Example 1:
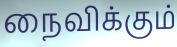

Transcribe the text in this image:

நைவிக்கும்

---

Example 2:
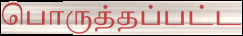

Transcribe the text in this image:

பொருத்தப்பட்ட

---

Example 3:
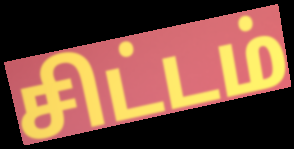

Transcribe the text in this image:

சிட்டம்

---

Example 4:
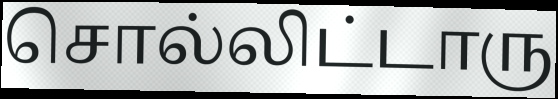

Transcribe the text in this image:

சொல்லிட்டாரு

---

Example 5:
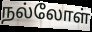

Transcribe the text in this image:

நல்லோள்